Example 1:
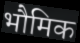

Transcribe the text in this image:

भौमिक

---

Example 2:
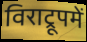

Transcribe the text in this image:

विराट्रूपमें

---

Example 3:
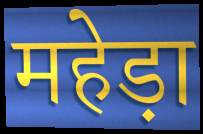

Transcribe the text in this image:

महेड़ा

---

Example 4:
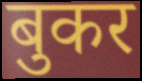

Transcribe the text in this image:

बुकर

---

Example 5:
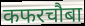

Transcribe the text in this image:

कफरचौबा